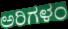
ಅರಿಗಳಂ